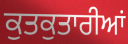
ਕੁਤਕੁਤਾਰੀਆਂ